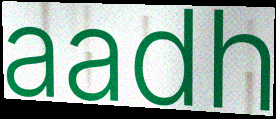
aadh